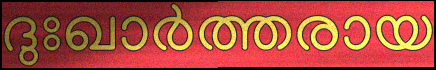
ദുഃഖാർത്തരായ